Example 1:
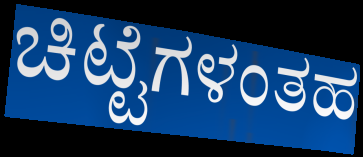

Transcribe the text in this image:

ಚಿಟ್ಟೆಗಳಂತಹ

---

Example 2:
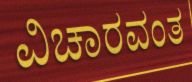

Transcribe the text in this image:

ವಿಚಾರವಂತ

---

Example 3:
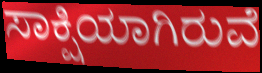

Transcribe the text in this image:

ಸಾಕ್ಷಿಯಾಗಿರುವೆ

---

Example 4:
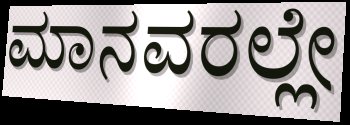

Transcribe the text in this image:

ಮಾನವರಲ್ಲೇ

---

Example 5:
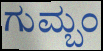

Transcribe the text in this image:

ಗುಮ್ಬಂ